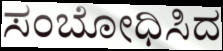
ಸಂಬೋಧಿಸಿದ